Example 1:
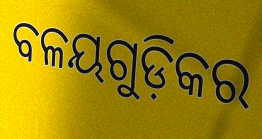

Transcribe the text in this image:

ବଳୟଗୁଡ଼ିକର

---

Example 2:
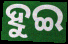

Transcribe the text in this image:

ହୁଇ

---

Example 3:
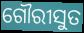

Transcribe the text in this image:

ଗୌରୀସୁତ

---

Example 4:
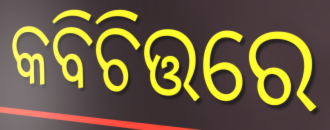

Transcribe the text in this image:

କବିଚିତ୍ତରେ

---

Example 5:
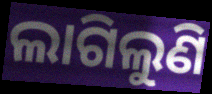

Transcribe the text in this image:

ଲାଗିଲୁଣି